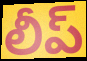
లీప్